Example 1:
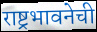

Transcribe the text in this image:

राष्ट्रभावनेची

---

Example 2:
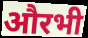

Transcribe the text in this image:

औरभी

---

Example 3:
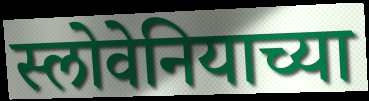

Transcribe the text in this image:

स्लोवेनियाच्या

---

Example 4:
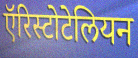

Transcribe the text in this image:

ऍरिस्टोटेलियन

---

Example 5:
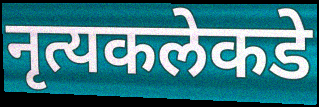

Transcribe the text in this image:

नृत्यकलेकडे